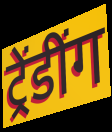
ट्रेंडींग